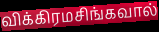
விக்கிரமசிங்கவால்